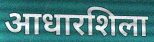
आधारशिला